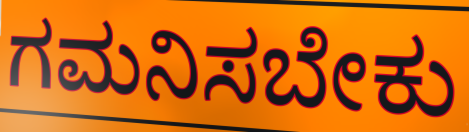
ಗಮನಿಸಬೇಕು